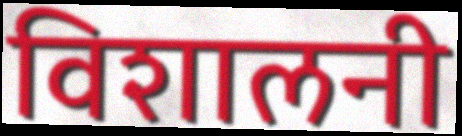
विशालनी